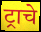
ट्राचे